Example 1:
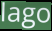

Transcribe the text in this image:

Iago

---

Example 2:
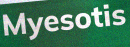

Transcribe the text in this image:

Myesotis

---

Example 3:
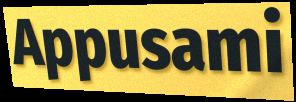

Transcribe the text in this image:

Appusami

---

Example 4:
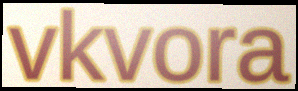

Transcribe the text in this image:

vkvora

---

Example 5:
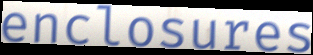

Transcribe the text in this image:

enclosures